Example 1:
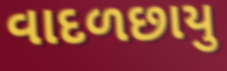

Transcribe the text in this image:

વાદળછાયુ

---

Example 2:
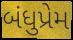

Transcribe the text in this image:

બંધુપ્રેમ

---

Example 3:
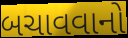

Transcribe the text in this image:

બચાવવાનો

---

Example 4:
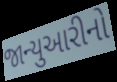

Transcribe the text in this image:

જાન્યુઆરીનો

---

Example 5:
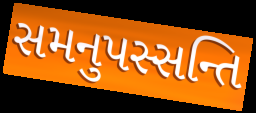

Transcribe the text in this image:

સમનુપસ્સન્તિ